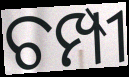
ଚମ୍ପୀ